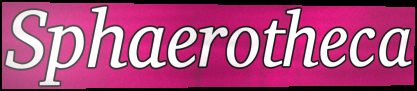
Sphaerotheca